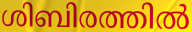
ശിബിരത്തിൽ